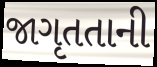
જાગૃતતાની